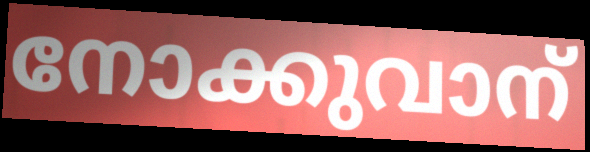
നോക്കുവാന്